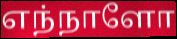
எந்நாளோ